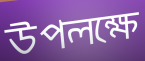
উপলক্ষে